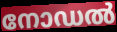
നോഡൽ